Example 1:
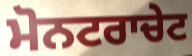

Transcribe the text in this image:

ਮੋਨਟਰਾਚੇਟ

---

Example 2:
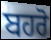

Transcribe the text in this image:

ਬਹਰੋ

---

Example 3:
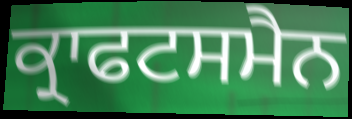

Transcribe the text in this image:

ਕ੍ਰਾਫਟਸਮੈਨ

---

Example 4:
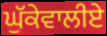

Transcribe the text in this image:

ਘੁੱਕੇਵਾਲੀਏ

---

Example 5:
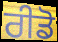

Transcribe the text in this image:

ਰੀਡੋ